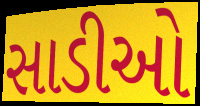
સાડીઓ